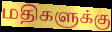
மதிகளுக்கு